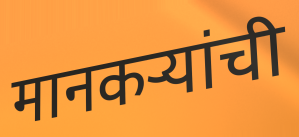
मानकऱ्यांची